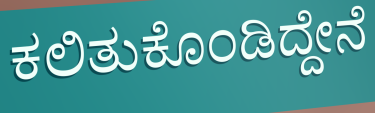
ಕಲಿತುಕೊಂಡಿದ್ದೇನೆ